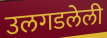
उलगडलेली